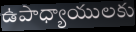
ఉపాధ్యాయులకు